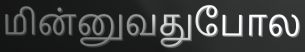
மின்னுவதுபோல